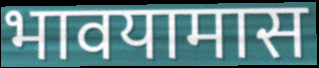
भावयामास